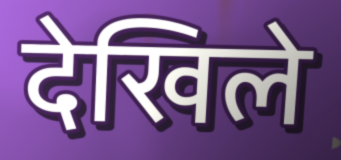
देखिले